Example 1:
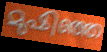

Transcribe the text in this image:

മുഷിഞ്ഞ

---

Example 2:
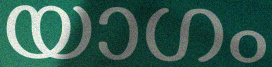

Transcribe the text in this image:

യാഗം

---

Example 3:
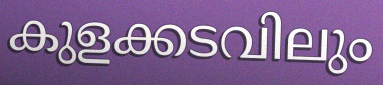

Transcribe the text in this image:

കുളക്കടവിലും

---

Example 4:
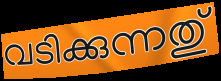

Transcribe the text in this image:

വടിക്കുന്നതു്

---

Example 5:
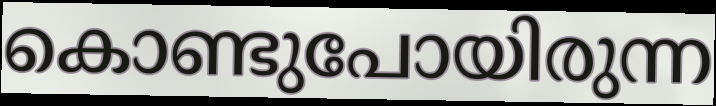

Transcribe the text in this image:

കൊണ്ടുപോയിരുന്ന